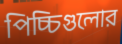
পিচ্চিগুলোর